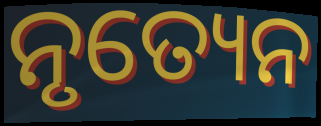
ନୃତ୍ୟେନ